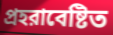
প্রহরাবেষ্টিত